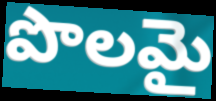
పొలమై